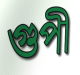
গুপী